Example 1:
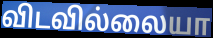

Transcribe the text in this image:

விடவில்லையா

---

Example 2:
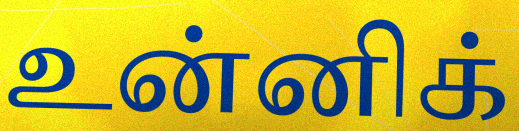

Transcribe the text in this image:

உன்னிக்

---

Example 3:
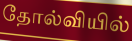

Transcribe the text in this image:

தோல்வியில்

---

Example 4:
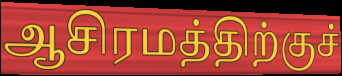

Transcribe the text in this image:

ஆசிரமத்திற்குச்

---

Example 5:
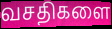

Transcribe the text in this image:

வசதிகளை